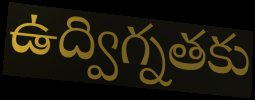
ఉద్విగ్నతకు